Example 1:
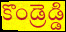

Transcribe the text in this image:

కొండ్రెడ్డి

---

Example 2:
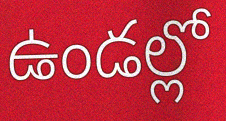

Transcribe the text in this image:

ఉండల్లో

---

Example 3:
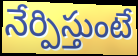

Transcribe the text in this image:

నేర్పిస్తుంటే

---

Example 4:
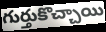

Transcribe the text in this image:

గుర్తుకొచ్చాయి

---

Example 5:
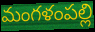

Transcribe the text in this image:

మంగళంపల్లి